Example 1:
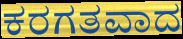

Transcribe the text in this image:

ಕರಗತವಾದ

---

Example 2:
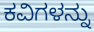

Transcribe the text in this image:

ಕವಿಗಳನ್ನು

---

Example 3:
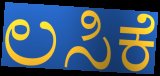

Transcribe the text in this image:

ಲಸಿಕೆ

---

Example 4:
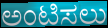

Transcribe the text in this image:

ಅಂಟಿಸಲು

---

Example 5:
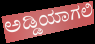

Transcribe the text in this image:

ಅಡ್ಡಿಯಾಗಲಿ